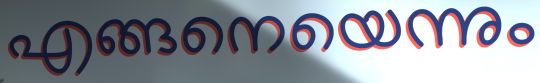
എങ്ങനെയെന്നും